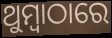
ଥୁମ୍ବାଠାରେ